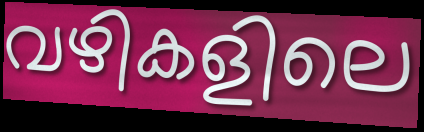
വഴികളിലെ